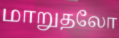
மாறுதலோ